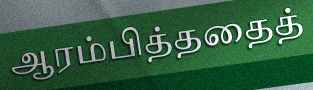
ஆரம்பித்ததைத்